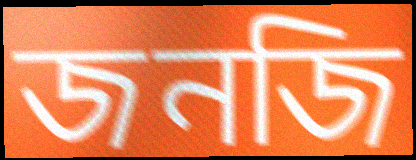
জনজি